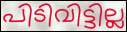
പിടിവിട്ടില്ല